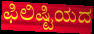
ಫಿಲಿಷ್ಟಿಯದ